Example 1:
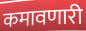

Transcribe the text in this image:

कमावणारी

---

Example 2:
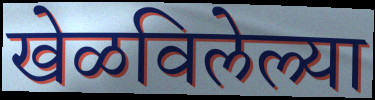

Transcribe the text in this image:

खेळविलेल्या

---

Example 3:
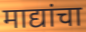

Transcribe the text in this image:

माद्यांचा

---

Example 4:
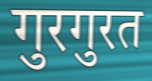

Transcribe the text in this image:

गुरगुरत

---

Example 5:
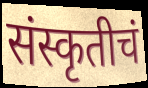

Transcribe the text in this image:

संस्कृतीचं